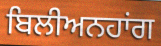
ਬਿਲੀਅਨਹਾਂਗ